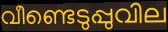
വീണ്ടെടുപ്പുവില